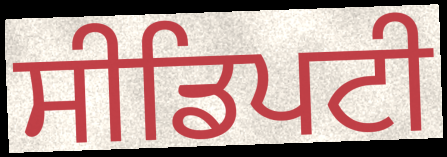
ਸੀਡਿਪਟੀ